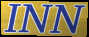
INN